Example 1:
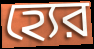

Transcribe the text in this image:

হ্যের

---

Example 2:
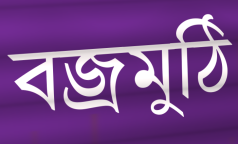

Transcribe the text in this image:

বজ্রমুঠি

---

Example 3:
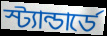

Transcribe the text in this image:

স্ট্যান্ডার্ডে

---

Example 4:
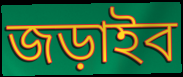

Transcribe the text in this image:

জড়াইব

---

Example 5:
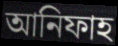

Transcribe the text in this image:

আনিফাহ